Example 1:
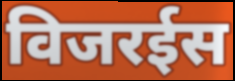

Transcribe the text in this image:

विजरईस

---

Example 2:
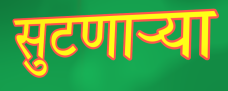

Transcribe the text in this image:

सुटणाऱ्या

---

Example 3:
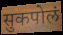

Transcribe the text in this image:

सुकपोलं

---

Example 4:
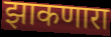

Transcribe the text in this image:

झाकणारा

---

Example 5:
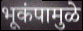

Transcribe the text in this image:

भूकंपामुळे